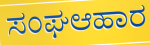
ಸಂಘಆಹಾರ